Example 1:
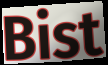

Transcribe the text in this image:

Bist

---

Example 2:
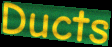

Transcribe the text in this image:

Ducts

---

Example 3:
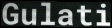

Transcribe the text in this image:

Gulati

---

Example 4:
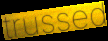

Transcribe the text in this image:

trussed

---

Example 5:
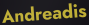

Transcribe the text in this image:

Andreadis